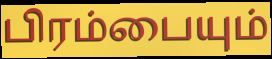
பிரம்பையும்